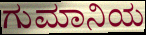
ಗುಮಾನಿಯ